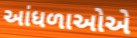
આંધળાઓએ